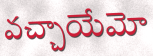
వచ్చాయేమో